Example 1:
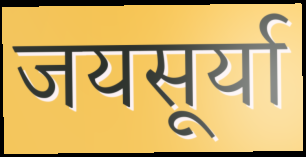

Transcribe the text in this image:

जयसूर्या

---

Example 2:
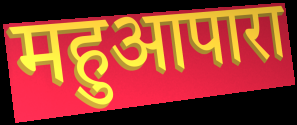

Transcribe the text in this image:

महुआपारा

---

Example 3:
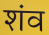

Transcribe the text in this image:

शंव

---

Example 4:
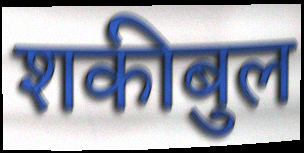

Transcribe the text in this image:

शकीबुल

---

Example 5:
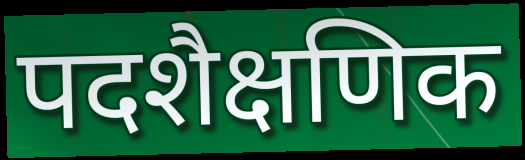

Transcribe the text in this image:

पदशैक्षणिक